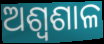
ଅଶ୍ୱଶାଳ